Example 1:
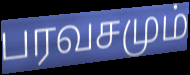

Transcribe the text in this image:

பரவசமும்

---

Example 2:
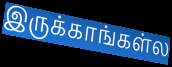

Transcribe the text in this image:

இருக்காங்கள்ல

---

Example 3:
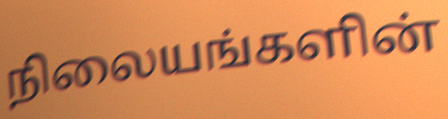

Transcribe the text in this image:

நிலையங்களின்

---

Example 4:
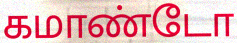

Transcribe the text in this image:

கமாண்டோ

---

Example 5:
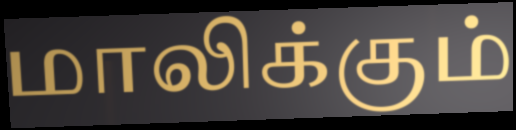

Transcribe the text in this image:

மாலிக்கும்